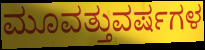
ಮೂವತ್ತುವರ್ಷಗಳ